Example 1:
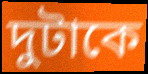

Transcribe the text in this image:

দুটাকে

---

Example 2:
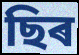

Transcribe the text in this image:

ছিৰ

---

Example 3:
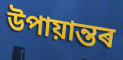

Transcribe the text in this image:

উপায়ান্তৰ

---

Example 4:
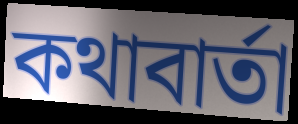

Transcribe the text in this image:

কথাবাৰ্তা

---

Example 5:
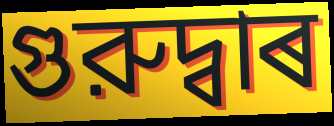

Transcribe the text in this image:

গুৰুদ্বাৰ